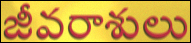
జీవరాశులు